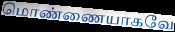
மொண்ணையாகவே